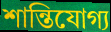
শান্তিযোগ্য